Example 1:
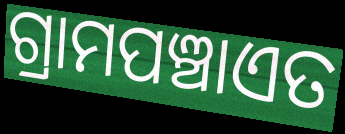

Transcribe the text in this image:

ଗ୍ରାମପଞ୍ଚାଏତ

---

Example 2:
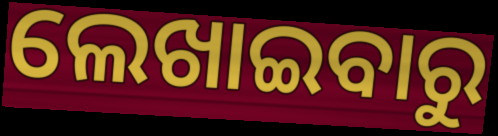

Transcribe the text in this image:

ଲେଖାଇବାରୁ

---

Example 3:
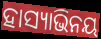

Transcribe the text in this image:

ହାସ୍ୟାଭିନୟ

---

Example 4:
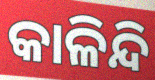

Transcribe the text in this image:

କାଳିନ୍ଦି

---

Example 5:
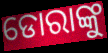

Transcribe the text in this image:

ଡୋରାଙ୍କୁ